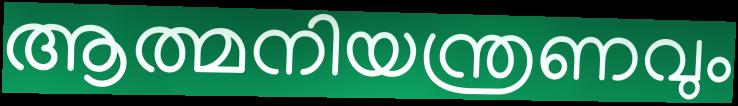
ആത്മനിയന്ത്രണവും